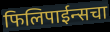
फिलिपाईन्सचा